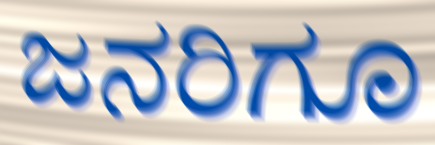
ಜನರಿಗೂ